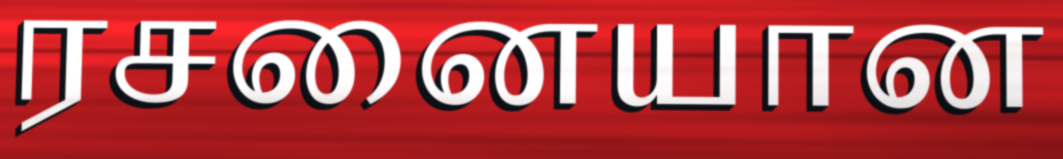
ரசனையான